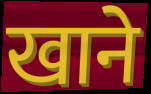
खाने